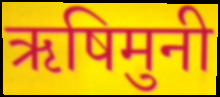
ऋषिमुनी